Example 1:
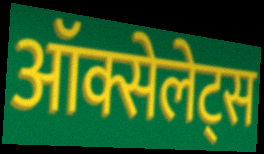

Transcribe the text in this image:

ऑक्सेलेट्स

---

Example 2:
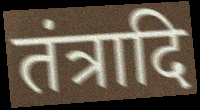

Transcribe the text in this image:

तंत्रादि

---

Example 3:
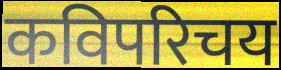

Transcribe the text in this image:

कविपरिचय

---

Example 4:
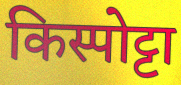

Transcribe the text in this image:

किस्पोट्टा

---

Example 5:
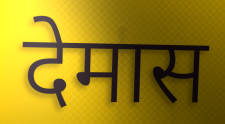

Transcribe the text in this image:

देमास